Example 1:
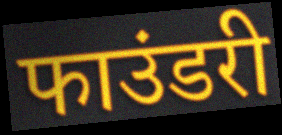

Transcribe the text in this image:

फाउंडरी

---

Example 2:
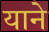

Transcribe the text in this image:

याने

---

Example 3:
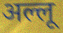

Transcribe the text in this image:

अल्लू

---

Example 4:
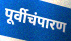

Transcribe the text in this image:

पूर्वीचंपारण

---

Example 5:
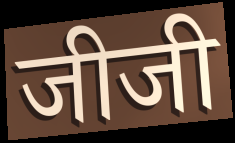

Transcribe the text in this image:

जीजी